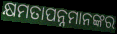
କ୍ଷମତାପନ୍ନମାନଙ୍କର